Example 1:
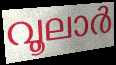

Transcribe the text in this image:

വൂലാർ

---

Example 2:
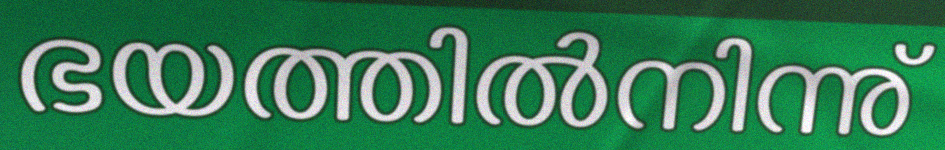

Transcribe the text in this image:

ഭയത്തിൽനിന്നു്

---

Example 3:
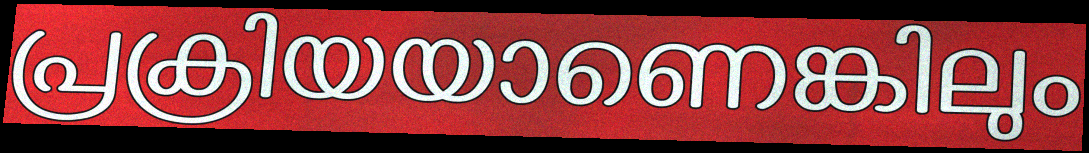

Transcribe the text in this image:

പ്രക്രിയയാണെങ്കിലും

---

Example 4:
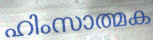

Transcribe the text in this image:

ഹിംസാത്മക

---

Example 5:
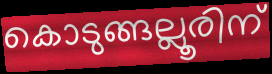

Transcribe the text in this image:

കൊടുങ്ങല്ലൂരിന്